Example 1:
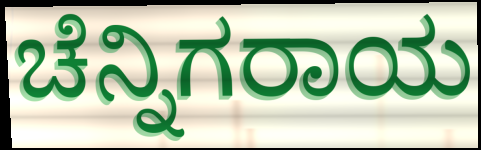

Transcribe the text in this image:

ಚೆನ್ನಿಗರಾಯ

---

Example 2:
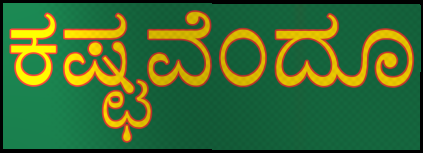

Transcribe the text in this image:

ಕಷ್ಟವೆಂದೂ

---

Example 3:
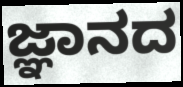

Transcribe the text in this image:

ಜ್ಞಾನದ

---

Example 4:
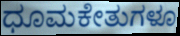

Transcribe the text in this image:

ಧೂಮಕೇತುಗಳೂ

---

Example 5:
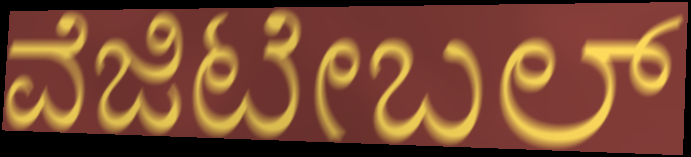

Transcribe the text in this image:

ವೆಜಿಟೇಬಲ್